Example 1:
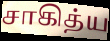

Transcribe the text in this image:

சாகித்ய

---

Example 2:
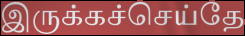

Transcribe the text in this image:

இருக்கச்செய்தே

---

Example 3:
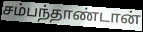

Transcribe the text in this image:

சம்பந்தாண்டான்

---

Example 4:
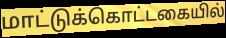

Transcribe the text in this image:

மாட்டுக்கொட்டகையில்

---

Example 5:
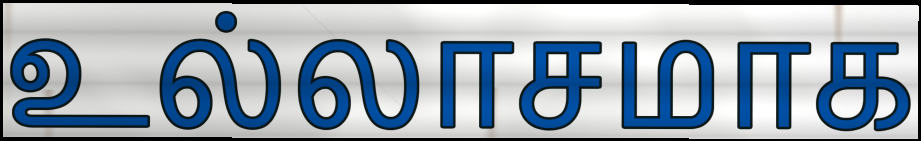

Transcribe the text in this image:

உல்லாசமாக